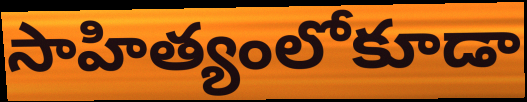
సాహిత్యంలోకూడా